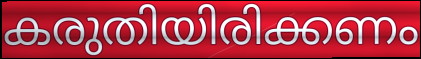
കരുതിയിരിക്കണം